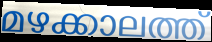
മഴക്കാലത്ത്